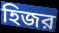
হিজর